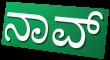
ನಾವ್